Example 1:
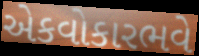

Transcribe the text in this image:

એકવોકારભવે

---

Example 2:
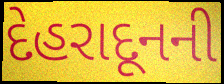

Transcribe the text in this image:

દેહરાદૂનની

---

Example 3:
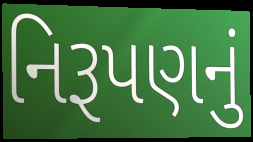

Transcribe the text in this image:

નિરૂપણનું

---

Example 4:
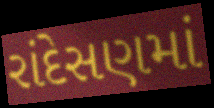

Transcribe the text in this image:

રાંદેસણમાં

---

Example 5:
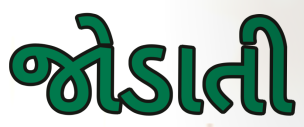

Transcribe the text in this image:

જોડાતી